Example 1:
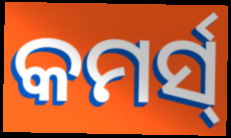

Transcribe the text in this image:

କମର୍ସ୍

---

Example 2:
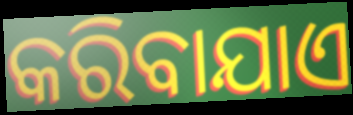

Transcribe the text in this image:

କରିବାଯାଏ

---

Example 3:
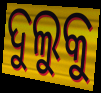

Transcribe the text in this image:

ଦୁଲୁକୁ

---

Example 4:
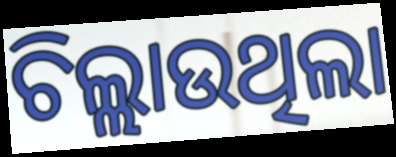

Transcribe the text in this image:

ଚିଲ୍ଲାଉଥିଲା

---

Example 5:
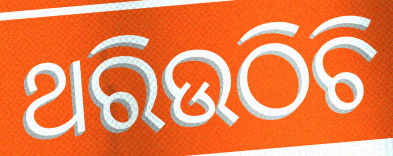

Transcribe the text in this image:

ଥରିଉଠିଚି